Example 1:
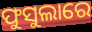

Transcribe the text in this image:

ଫୁସୁଲାରେ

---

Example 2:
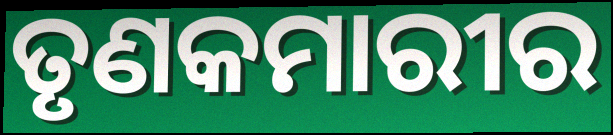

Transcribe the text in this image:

ତୃଣକମାରୀର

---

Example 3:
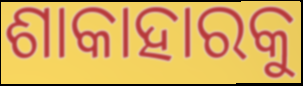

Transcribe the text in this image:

ଶାକାହାରକୁ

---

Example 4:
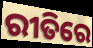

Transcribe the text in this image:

ରୀତିରେ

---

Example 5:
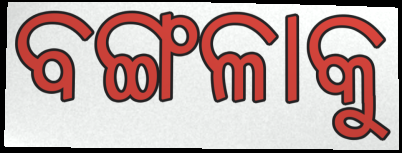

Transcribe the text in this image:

ବଙ୍ଗଳାକୁ